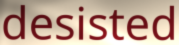
desisted